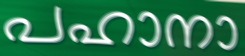
പഹാനാ